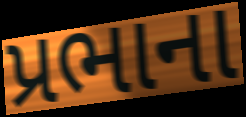
પ્રભાના